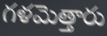
గళమెత్తారు